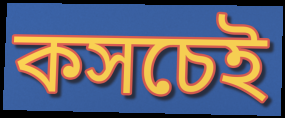
কসচেই